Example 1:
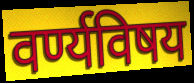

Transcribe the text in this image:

वर्ण्यविषय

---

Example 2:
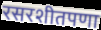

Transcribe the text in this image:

रसरशीतपणा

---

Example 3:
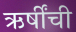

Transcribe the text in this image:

ऋर्षींची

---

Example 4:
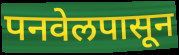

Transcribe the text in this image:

पनवेलपासून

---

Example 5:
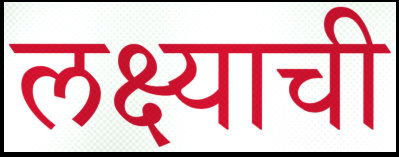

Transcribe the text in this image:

लक्ष्याची